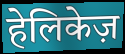
हेलिकेज़